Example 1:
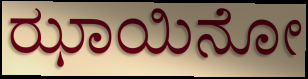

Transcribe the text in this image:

ಝಾಯಿನೋ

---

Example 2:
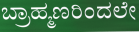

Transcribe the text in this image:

ಬ್ರಾಹ್ಮಣರಿಂದಲೇ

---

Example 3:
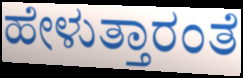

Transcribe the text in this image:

ಹೇಳುತ್ತಾರಂತೆ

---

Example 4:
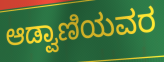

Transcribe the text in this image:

ಆಡ್ವಾಣಿಯವರ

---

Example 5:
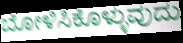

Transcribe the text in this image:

ಬೋಳಿಸಿಕೊಳ್ಳುವುದು